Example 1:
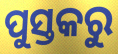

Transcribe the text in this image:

ପୁସ୍ତକରୁ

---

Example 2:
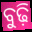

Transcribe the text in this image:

ବୁଢ଼ି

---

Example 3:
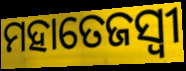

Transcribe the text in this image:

ମହାତେଜସ୍ୱୀ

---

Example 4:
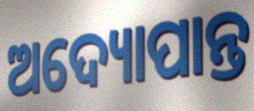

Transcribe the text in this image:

ଅଦ୍ୟୋପାନ୍ତ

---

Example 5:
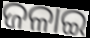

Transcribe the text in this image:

ଜଳାଇ